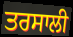
ਤਰਸਾਲੀ